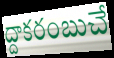
ద్దాకరంబుచే